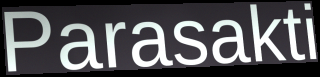
Parasakti